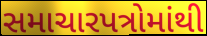
સમાચારપત્રોમાંથી